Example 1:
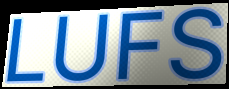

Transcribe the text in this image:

LUFS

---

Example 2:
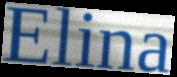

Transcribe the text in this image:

Elina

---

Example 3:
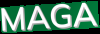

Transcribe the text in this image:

MAGA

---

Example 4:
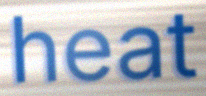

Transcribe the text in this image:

heat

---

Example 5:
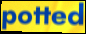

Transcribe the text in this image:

potted